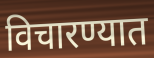
विचारण्यात